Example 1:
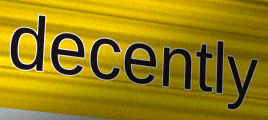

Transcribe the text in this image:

decently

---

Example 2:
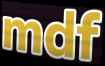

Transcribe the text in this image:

mdf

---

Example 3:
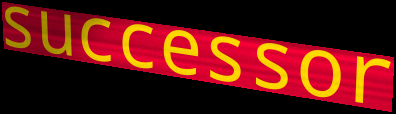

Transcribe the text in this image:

successor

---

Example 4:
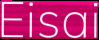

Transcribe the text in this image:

Eisai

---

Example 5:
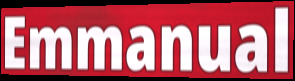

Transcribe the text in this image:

Emmanual